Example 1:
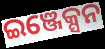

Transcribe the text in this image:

ଇଞ୍ଜେକ୍ସନ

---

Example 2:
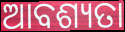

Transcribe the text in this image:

ଆବଶ୍ୟତା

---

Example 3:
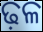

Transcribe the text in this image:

ଢ଼ଳ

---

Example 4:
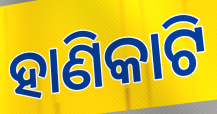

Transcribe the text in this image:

ହାଣିକାଟି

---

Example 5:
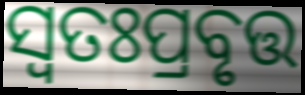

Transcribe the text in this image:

ସ୍ବତଃପ୍ରବୃତ୍ତ